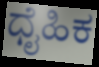
ಧೈಹಿಕ